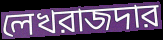
লেখরাজদার